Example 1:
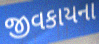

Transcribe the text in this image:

જીવકાયના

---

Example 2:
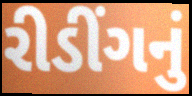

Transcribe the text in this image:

રીડીંગનું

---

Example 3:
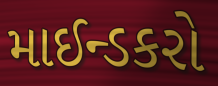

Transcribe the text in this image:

માઈન્ડકરો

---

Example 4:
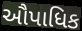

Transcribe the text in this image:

ઔપાધિક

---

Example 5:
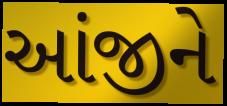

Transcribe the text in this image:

આંજીને